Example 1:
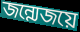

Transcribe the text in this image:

জন্মেজয়ে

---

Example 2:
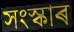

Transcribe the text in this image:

সংস্কাৰ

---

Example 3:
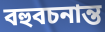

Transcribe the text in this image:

বহুবচনান্ত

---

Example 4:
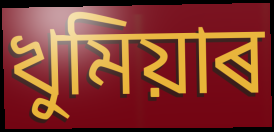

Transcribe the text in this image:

খুমিয়াৰ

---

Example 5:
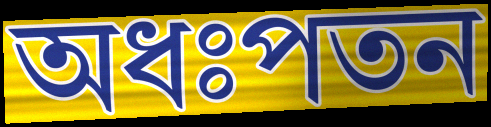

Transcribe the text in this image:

অধঃপতন